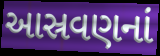
આસ્રવણનાં